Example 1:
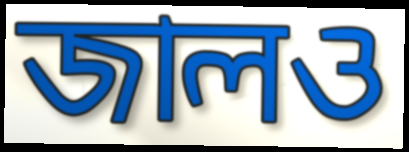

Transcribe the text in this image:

জালও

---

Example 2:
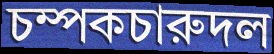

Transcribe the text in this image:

চম্পকচারুদল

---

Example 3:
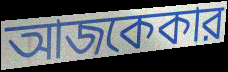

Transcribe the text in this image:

আজকেকার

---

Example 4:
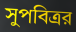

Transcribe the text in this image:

সুপবিত্রর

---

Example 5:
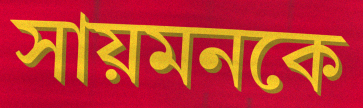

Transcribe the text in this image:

সায়মনকে